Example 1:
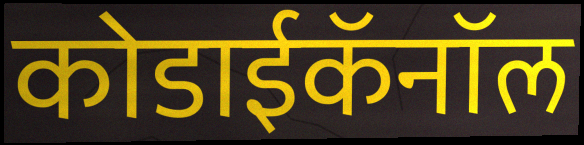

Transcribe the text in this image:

कोडाईकॅनॉल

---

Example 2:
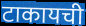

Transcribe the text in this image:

टाकायची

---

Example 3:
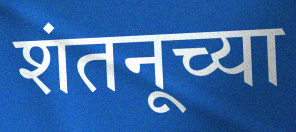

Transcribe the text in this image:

शंतनूच्या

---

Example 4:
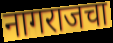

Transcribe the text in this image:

नागराजचा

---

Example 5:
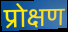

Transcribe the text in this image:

प्रोक्षण